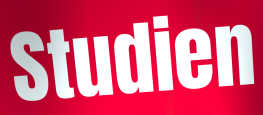
Studien